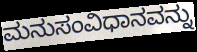
ಮನುಸಂವಿಧಾನವನ್ನು